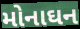
મોનાઘન